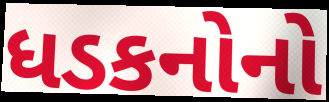
ધડકનોનો